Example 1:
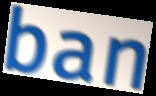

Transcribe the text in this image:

ban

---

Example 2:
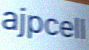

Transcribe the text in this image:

ajpcell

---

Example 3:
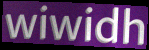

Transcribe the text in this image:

wiwidh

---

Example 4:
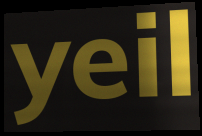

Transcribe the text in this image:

yeil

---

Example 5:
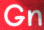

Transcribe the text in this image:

Gn